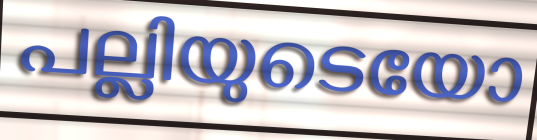
പല്ലിയുടെയോ